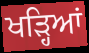
ਖੜ੍ਹਿਆਂ